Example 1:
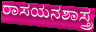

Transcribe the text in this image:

ರಾಸಯನಶಾಸ್ತ್ರ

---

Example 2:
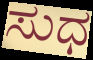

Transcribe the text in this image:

ಸುಧ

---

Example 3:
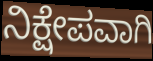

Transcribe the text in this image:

ನಿಕ್ಷೇಪವಾಗಿ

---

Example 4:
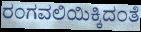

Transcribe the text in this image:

ರಂಗವಲಿಯಿಕ್ಕಿದಂತೆ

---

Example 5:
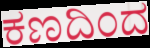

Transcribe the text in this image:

ಕಣದಿಂದ